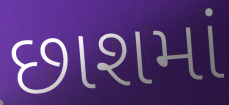
છાશમાં